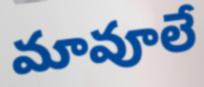
మావూలే